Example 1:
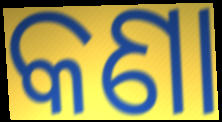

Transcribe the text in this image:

କଣା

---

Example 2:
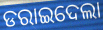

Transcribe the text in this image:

ଡରାଇଦେଲା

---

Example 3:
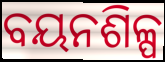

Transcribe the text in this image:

ବୟନଶିଳ୍ପ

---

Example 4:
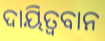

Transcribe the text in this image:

ଦାୟିତ୍ବବାନ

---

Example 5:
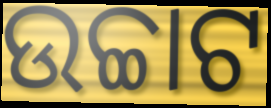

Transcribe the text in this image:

ଉଚ୍ଚାଟ